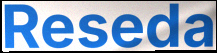
Reseda